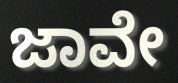
ಜಾವೇ